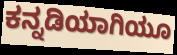
ಕನ್ನಡಿಯಾಗಿಯೂ